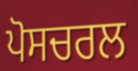
ਪੋਸਚਰਲ